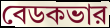
বেডকভার